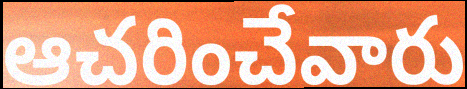
ఆచరించేవారు